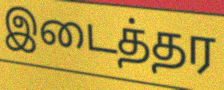
இடைத்தர